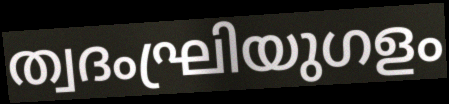
ത്വദംഘ്രിയുഗളം